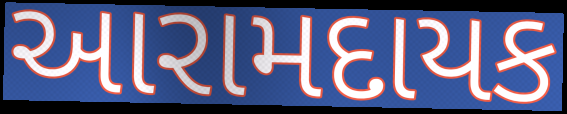
આરામદાયક